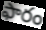
ఫారం